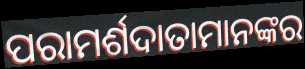
ପରାମର୍ଶଦାତାମାନଙ୍କର